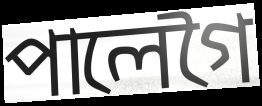
পালেগৈ